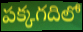
పక్కగదిలో